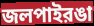
জলপাইরঙা